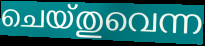
ചെയ്തുവെന്ന